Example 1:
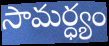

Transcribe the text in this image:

సామర్ధ్యం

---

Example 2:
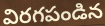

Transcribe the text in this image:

విరగపండిన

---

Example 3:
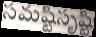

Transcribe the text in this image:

సమష్టిసృష్టి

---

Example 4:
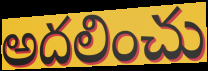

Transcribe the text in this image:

అదలించు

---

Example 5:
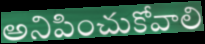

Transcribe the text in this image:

అనిపించుకోవాలి